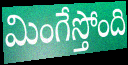
మింగేస్తోంది